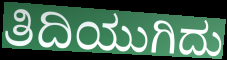
ತಿದಿಯುಗಿದು